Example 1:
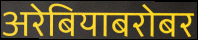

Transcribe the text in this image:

अरेबियाबरोबर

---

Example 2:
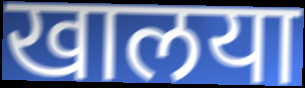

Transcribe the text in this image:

खालया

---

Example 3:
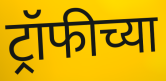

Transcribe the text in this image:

ट्रॉफीच्या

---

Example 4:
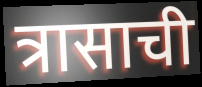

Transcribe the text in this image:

त्रासाची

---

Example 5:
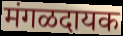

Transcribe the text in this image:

मंगळदायक